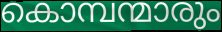
കൊമ്പന്മാരും